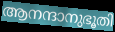
ആനന്ദാനുഭൂതി